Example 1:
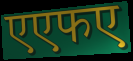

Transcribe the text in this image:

एएफए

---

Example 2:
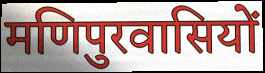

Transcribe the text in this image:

मणिपुरवासियों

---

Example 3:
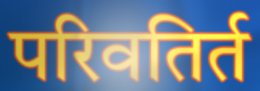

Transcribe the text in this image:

परिवतिर्त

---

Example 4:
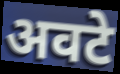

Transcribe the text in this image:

अवटे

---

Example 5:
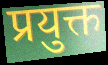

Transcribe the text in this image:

प्रयुक्त